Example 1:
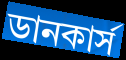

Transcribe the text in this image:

ডানকার্স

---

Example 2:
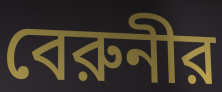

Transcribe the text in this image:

বেরুনীর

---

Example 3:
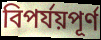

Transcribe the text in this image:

বিপর্যয়পূর্ণ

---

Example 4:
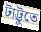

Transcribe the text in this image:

টাট্টুতে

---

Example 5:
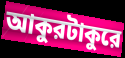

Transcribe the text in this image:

আকুরটাকুরে